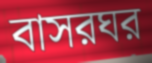
বাসরঘর